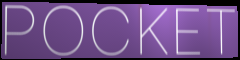
POCKET